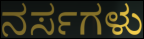
ನರ್ಸಗಳು